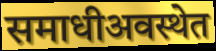
समाधीअवस्थेत